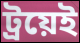
ট্রয়েই